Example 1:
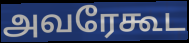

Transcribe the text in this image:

அவரேகூட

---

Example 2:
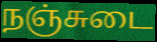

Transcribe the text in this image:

நஞ்சுடை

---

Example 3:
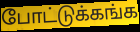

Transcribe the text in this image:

போட்டுக்கங்க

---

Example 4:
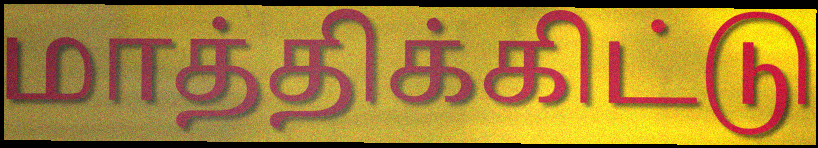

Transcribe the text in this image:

மாத்திக்கிட்டு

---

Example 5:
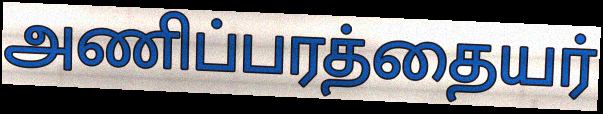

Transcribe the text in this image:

அணிப்பரத்தையர்